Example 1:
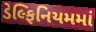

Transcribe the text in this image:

ડેલ્ફિનિયમમાં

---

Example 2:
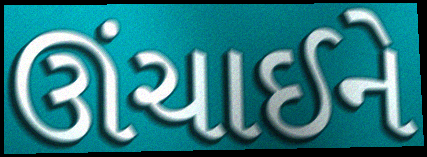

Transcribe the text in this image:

ઊંચાઈને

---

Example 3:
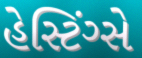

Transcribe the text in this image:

હેસ્ટિંગ્સે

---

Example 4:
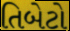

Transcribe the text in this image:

તિબેટો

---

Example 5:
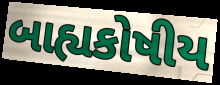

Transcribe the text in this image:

બાહ્યકોષીય